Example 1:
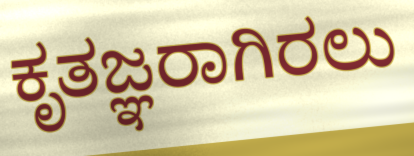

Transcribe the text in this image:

ಕೃತಜ್ಞರಾಗಿರಲು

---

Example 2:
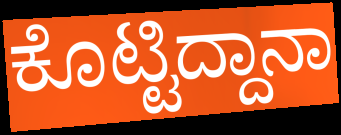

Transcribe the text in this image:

ಕೊಟ್ಟಿದ್ದಾನಾ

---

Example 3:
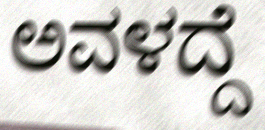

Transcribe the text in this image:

ಅವಳದ್ದೆ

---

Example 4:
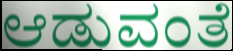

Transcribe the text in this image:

ಆಡುವಂತೆ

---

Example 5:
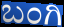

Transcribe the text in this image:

ಬಂಗಿ